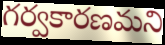
గర్వకారణమని